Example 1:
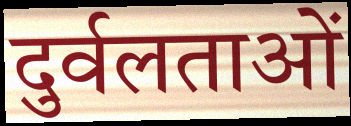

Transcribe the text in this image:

दुर्वलताओं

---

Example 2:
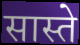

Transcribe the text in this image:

सास्ते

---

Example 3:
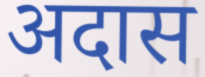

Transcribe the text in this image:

अदास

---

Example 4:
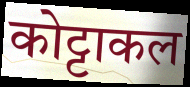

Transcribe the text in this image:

कोट्टाकल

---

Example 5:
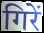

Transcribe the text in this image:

गिरें